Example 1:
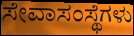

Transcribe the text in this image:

ಸೇವಾಸಂಸ್ಥೆಗಳು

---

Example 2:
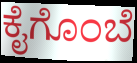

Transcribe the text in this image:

ಕೈಗೊಂಬೆ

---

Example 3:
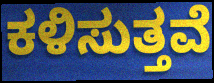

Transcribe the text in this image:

ಕಳಿಸುತ್ತವೆ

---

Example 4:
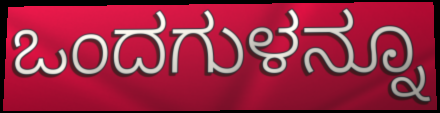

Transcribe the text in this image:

ಒಂದಗುಳನ್ನೂ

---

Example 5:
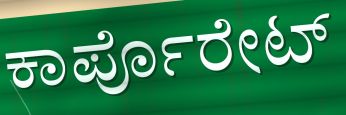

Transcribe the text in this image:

ಕಾರ್ಪೊರೇಟ್